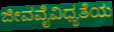
ಜೀವವೈವಿಧ್ಯತೆಯ